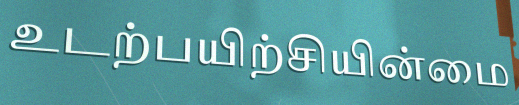
உடற்பயிற்சியின்மை